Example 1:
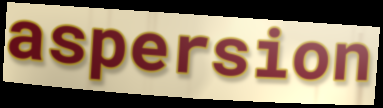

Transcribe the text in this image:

aspersion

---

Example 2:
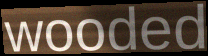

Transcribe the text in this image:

wooded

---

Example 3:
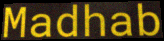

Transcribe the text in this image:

Madhab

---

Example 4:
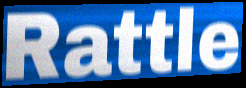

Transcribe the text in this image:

Rattle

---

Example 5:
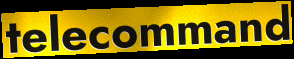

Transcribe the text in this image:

telecommand